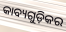
କାବ୍ୟଗୁଡ଼ିକର